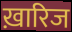
ख़ारिज